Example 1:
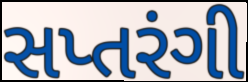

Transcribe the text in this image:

સપ્તરંગી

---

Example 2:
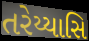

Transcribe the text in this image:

તરેય્યાસિ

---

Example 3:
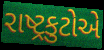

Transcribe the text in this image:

રાષ્ટ્રકુટોએ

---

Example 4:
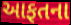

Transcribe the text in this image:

આફતના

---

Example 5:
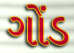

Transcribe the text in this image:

ગોંડ